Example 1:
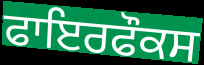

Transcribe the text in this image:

ਫਾਇਰਫੌਕਸ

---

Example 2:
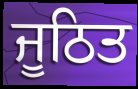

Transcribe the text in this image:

ਜੂਠਿਤ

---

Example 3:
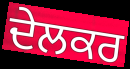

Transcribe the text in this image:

ਦੇਲਕਰ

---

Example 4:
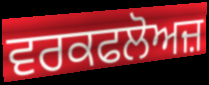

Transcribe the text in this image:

ਵਰਕਫਲੋਅਜ਼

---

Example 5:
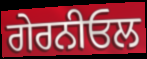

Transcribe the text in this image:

ਗੇਰਨੀਓਲ